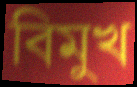
বিমুখ